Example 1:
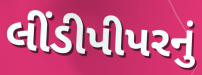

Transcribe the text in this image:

લીંડીપીપરનું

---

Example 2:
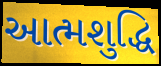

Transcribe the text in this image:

આત્મશુદ્ધિ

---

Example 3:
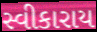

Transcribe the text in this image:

સ્વીકારાય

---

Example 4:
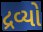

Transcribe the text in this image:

દ્રવ્યો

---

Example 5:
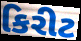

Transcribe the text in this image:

કિરીટ